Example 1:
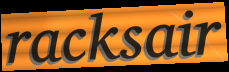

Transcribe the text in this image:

racksair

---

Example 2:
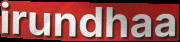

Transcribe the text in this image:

irundhaa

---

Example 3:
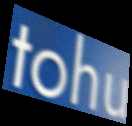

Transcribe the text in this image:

tohu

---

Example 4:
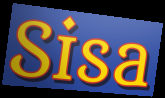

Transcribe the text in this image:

Sisa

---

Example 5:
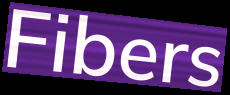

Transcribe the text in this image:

Fibers